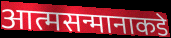
आत्मसन्मानाकडे